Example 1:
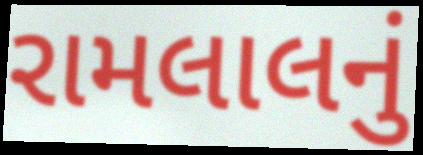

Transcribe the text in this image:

રામલાલનું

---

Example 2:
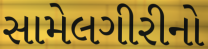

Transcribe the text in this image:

સામેલગીરીનો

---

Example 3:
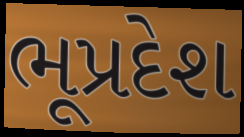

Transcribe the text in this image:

ભૂપ્રદેશ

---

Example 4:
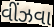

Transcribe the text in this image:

વીંઝવા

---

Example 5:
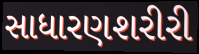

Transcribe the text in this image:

સાધારણશરીરી